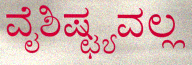
ವೈಶಿಷ್ಟ್ಯವಲ್ಲ